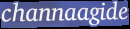
channaagide